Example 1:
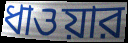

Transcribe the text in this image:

ধাওয়ার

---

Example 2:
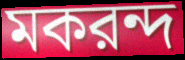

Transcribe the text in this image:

মকরন্দ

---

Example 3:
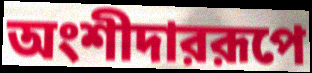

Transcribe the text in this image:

অংশীদাররূপে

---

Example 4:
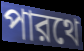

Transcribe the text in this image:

পারথে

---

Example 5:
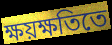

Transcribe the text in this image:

ক্ষয়ক্ষতিতে